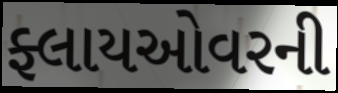
ફ્લાયઓવરની